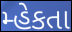
મ્હેકતા